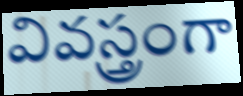
వివస్త్రంగా